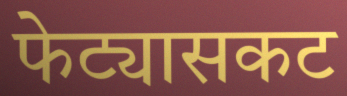
फेट्यासकट